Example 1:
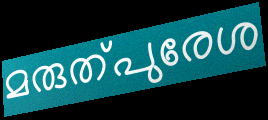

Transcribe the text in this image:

മരുത്പുരേശ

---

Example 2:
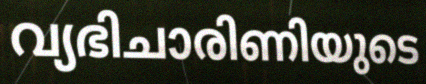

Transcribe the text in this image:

വ്യഭിചാരിണിയുടെ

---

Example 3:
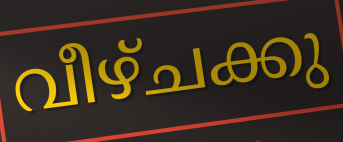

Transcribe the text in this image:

വീഴ്ചക്കു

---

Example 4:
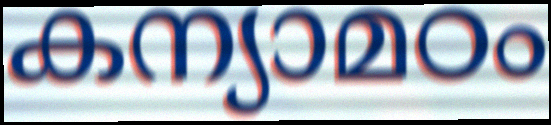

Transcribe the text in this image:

കന്യാമഠം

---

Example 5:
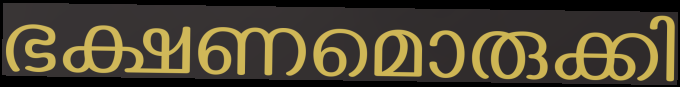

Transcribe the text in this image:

ഭക്ഷണമൊരുക്കി